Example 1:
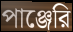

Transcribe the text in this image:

পাঞ্জেরি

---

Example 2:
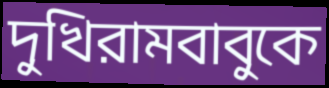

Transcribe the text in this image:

দুখিরামবাবুকে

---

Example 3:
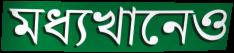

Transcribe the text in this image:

মধ্যখানেও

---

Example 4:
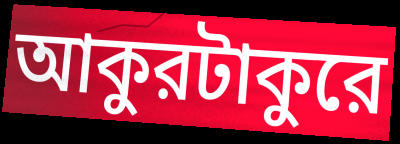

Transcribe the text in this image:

আকুরটাকুরে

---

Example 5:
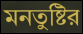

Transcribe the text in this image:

মনতুষ্টির